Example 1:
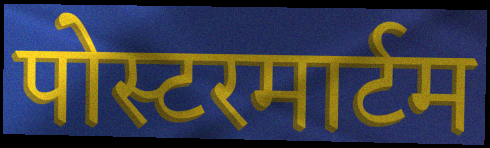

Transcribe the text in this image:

पोस्टरमार्टम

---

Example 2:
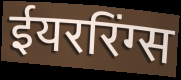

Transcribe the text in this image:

ईयररिंग्स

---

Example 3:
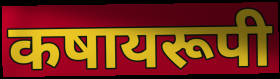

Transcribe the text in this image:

कषायरूपी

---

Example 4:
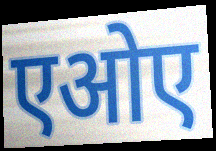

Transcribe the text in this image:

एओए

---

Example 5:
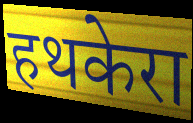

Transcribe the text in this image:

हथकेरा